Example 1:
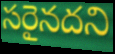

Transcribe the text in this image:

సరైనదని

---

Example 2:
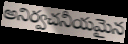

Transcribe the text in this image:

అనిర్వచనీయమైన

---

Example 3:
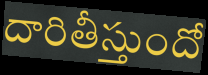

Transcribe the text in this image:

దారితీస్తుందో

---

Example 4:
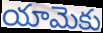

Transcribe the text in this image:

యామెకు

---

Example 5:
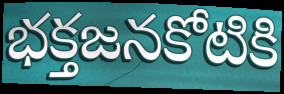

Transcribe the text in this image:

భక్తజనకోటికి